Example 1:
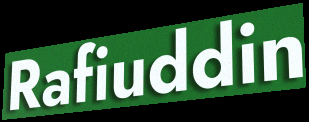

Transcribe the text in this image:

Rafiuddin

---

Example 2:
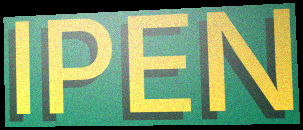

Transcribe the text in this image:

IPEN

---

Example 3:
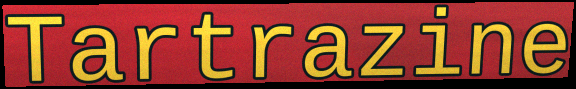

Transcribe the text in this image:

Tartrazine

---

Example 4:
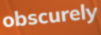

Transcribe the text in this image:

obscurely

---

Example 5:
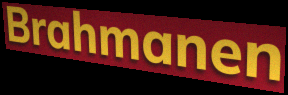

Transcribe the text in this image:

Brahmanen